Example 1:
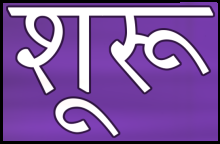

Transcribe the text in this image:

शूरू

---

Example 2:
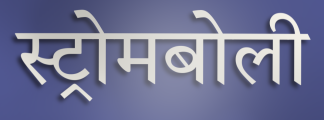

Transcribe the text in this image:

स्ट्रोमबोली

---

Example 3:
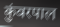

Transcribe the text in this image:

कुंवरपाल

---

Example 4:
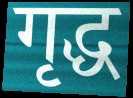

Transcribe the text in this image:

गृद्ध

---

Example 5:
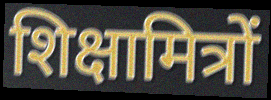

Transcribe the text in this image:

शिक्षामित्रों